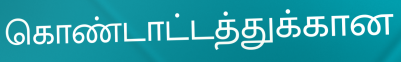
கொண்டாட்டத்துக்கான